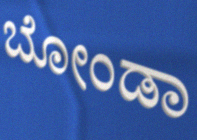
ಬೋಂಡಾ